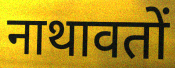
नाथावतों